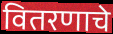
वितरणाचे